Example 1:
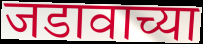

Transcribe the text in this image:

जडावाच्या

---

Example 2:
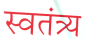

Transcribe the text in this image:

स्वतंत्र्य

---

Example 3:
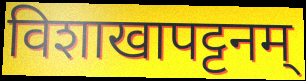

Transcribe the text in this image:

विशाखापट्टनम्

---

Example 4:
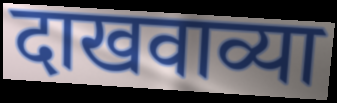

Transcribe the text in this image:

दाखवाव्या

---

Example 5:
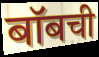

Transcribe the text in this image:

बॉबची